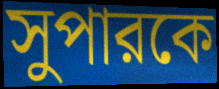
সুপারকে